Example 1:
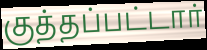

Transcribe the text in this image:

குத்தப்பட்டார்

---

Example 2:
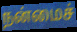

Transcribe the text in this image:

நன்மைச்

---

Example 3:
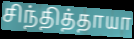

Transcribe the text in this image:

சிந்தித்தாயா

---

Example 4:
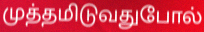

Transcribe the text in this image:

முத்தமிடுவதுபோல்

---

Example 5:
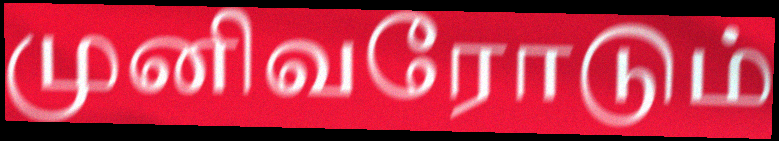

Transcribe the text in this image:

முனிவரோடும்